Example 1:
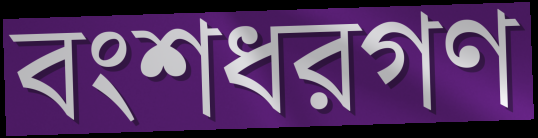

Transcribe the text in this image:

বংশধরগণ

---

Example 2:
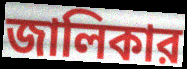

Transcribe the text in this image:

জালিকার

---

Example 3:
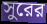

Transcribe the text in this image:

সুরের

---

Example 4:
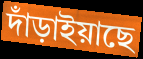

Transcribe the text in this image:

দাঁড়াইয়াছে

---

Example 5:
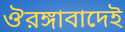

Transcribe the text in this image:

ঔরঙ্গাবাদেই